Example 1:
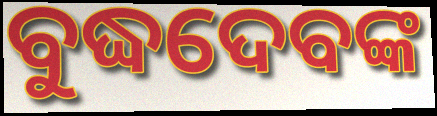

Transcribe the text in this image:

ବୁଦ୍ଧଦେବଙ୍କ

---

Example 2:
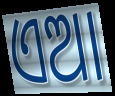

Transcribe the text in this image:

ଏଆ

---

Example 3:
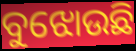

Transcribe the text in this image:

ବୁଝୋଉଛି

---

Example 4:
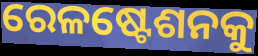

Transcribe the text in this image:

ରେଳଷ୍ଟେଶନକୁ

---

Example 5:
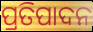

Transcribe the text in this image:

ପ୍ରତିପାଦନ